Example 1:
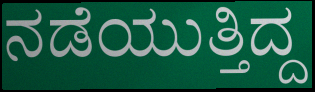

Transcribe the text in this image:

ನಡೆಯುತ್ತಿದ್ದ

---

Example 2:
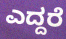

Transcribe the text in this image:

ಎದ್ದರೆ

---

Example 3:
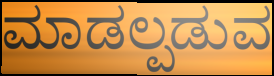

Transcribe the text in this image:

ಮಾಡಲ್ಪಡುವ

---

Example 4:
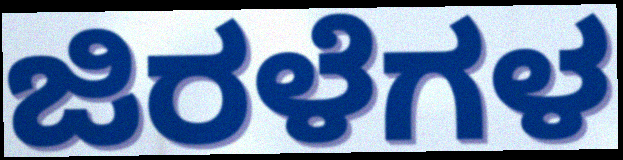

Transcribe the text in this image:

ಜಿರಳೆಗಳ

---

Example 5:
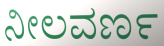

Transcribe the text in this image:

ನೀಲವರ್ಣ